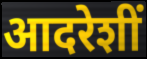
आदरेशीं